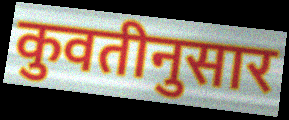
कुवतीनुसार